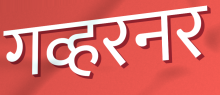
गव्हरनर